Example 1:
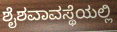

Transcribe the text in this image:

ಶೈಶವಾವಸ್ಥೆಯಲ್ಲಿ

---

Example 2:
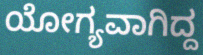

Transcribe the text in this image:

ಯೋಗ್ಯವಾಗಿದ್ದ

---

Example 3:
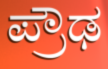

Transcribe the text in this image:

ಪ್ರೌಢ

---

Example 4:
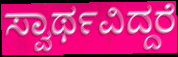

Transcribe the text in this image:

ಸ್ವಾರ್ಥವಿದ್ದರೆ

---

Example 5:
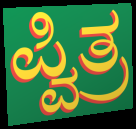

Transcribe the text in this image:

ಪ್ವಿತ್ರ